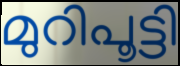
മുറിപൂട്ടി